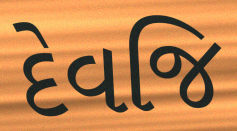
દેવજિ